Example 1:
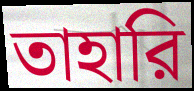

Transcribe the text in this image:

তাহারি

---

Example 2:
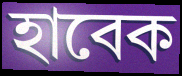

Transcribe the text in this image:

হাবেক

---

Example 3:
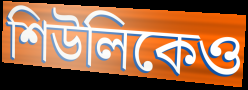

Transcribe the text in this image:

শিউলিকেও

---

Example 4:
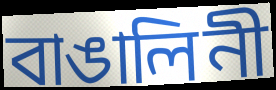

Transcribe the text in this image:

বাঙালিনী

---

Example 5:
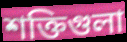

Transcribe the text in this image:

শক্তিগুলা